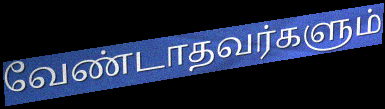
வேண்டாதவர்களும்